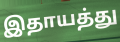
இதாயத்து